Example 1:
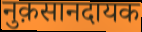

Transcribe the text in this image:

नुक़सानदायक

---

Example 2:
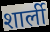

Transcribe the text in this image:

शार्ली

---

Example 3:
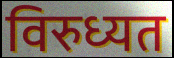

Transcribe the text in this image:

विरुध्यत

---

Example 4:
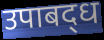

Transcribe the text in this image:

उपाबद्ध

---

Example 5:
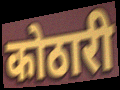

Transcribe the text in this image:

कोठारी